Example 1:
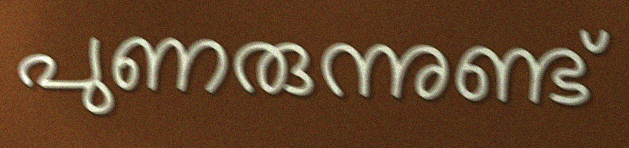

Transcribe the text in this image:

പുണരുന്നുണ്ട്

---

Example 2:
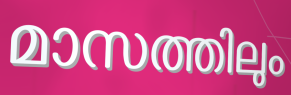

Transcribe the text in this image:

മാസത്തിലും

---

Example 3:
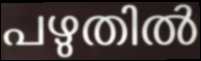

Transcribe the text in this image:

പഴുതിൽ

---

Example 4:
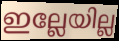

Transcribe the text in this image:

ഇല്ലേയില്ല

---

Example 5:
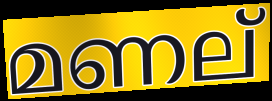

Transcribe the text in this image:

മണല്